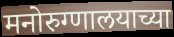
मनोरुग्णालयाच्या